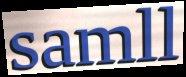
samll